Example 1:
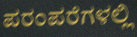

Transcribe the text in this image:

ಪರಂಪರೆಗಳಲ್ಲಿ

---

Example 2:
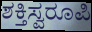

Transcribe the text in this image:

ಶಕ್ತಿಸ್ವರೂಪಿ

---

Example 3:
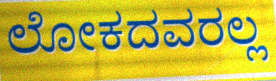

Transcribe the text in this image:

ಲೋಕದವರಲ್ಲ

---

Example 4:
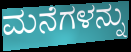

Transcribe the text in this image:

ಮನೆಗಳನ್ನು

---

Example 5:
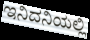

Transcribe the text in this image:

ಇನಿದನಿಯಲ್ಲಿ